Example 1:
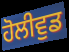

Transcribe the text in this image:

ਹੋਲੀਵੁਡ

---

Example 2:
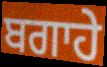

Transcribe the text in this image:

ਬਗਾਹੇ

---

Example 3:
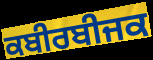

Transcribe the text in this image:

ਕਬੀਰਬੀਜਕ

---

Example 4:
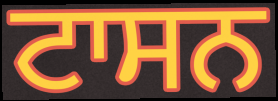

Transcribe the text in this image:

ਟਾਸਨ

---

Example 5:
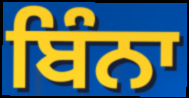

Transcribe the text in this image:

ਬਿੰਨਾ